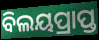
ବିଲୟପ୍ରାପ୍ତ